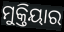
ମୁକ୍ତିୟାର